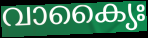
വാക്യൈഃ